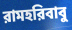
রামহরিবাবু